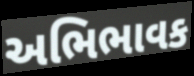
અભિભાવક